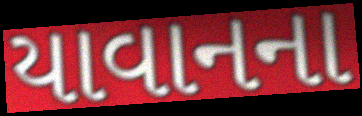
યાવાનના